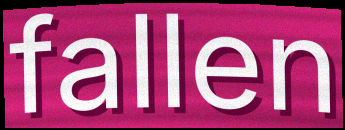
fallen